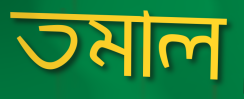
তমাল